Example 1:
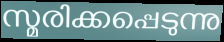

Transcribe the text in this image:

സ്മരിക്കപ്പെടുന്നു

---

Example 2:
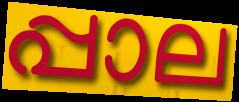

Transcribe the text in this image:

പ്പാല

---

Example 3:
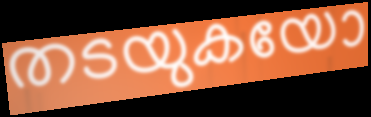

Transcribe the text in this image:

തടയുകയോ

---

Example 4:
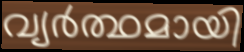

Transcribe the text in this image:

വ്യർത്ഥമായി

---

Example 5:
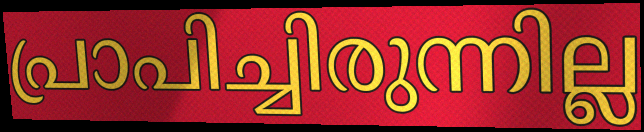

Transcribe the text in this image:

പ്രാപിച്ചിരുന്നില്ല